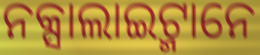
ନକ୍ସାଲାଇଟ୍ମାନେ